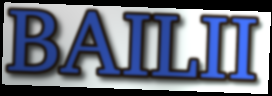
BAILII